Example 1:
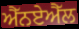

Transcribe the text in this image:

ਐੱਨਏਐੱਲ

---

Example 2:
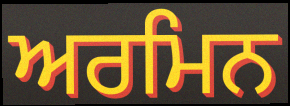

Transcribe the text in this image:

ਅਰਮਿਨ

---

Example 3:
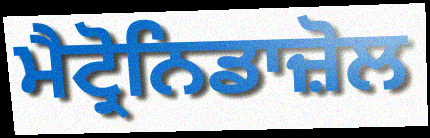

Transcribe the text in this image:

ਮੈਟ੍ਰੋਨਿਡਾਜ਼ੋਲ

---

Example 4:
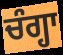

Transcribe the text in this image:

ਚੰਗ੍ਹਾ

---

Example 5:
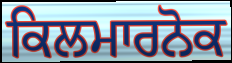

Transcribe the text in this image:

ਕਿਲਮਾਰਨੋਕ